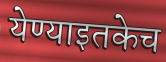
येण्याइतकेच